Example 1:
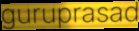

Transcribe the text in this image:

guruprasad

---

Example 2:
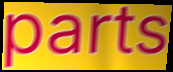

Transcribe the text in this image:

parts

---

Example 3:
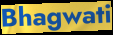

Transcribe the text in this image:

Bhagwati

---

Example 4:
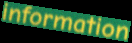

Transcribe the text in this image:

information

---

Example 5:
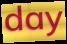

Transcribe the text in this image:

day